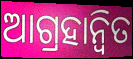
ଆଗ୍ରହାନ୍ୱିତ